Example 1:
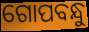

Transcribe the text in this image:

ଗୋପବନ୍ଧୁ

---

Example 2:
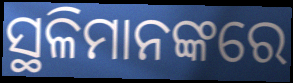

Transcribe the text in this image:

ସ୍ଥଳିମାନଙ୍କରେ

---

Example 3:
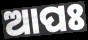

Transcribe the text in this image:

ଆପଃ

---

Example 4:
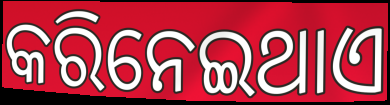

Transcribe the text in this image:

କରିନେଇଥାଏ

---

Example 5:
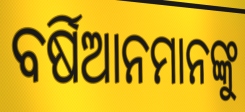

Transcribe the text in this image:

ବର୍ଷିଆନମାନଙ୍କୁ